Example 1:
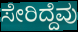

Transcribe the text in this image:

ಸೇರಿದ್ದೆವು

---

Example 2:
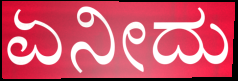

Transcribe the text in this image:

ಏನೀದು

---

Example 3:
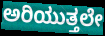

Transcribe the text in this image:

ಅರಿಯುತ್ತಲೇ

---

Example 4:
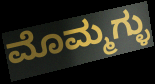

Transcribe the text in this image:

ಮೊಮ್ಮಗ್ಳು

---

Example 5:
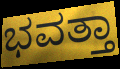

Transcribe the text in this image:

ಭವತ್ತಾ